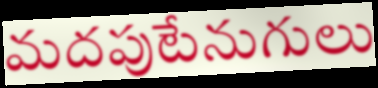
మదపుటేనుగులు